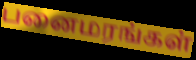
பனைமரங்கள்